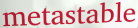
metastable